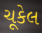
ચૂકેલ